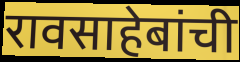
रावसाहेबांची